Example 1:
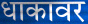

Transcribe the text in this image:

धाकावर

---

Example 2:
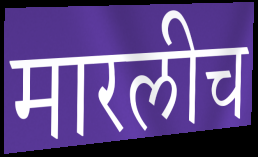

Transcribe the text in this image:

मारलीच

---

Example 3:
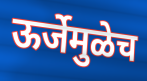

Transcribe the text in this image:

ऊर्जेमुळेच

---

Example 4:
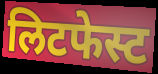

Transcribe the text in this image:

लिटफेस्ट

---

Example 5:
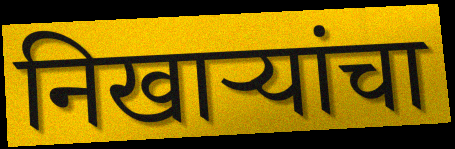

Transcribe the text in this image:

निखार्‍यांचा